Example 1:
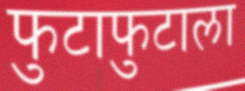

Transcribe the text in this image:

फुटाफुटाला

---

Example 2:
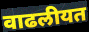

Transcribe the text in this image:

वाढलीयत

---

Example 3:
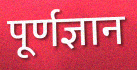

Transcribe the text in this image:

पूर्णज्ञान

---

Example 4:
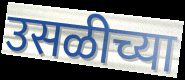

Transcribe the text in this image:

उसळीच्या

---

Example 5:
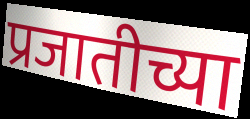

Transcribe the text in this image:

प्रजातीच्या